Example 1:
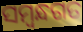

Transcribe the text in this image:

ସମ୍ବନ୍ଧଗତ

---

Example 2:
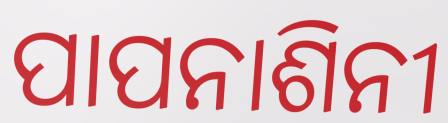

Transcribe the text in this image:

ପାପନାଶିନୀ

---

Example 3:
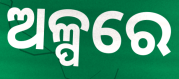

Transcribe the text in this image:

ଅଳ୍ପରେ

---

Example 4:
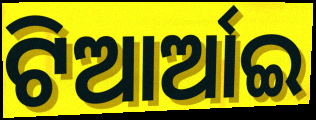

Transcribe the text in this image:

ଟିଆର୍ଆଇ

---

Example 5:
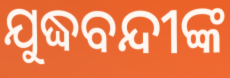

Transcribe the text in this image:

ଯୁଦ୍ଧବନ୍ଦୀଙ୍କ